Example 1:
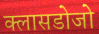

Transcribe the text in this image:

क्लासडोजो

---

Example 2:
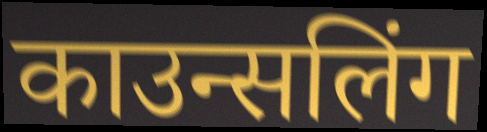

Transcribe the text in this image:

काउन्सलिंग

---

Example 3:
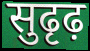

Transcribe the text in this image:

सुढृढ़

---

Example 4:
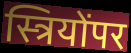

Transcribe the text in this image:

स्त्रियोंपर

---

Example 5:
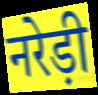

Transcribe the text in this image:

नरेड़ी